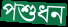
পশুধন